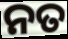
ନତ